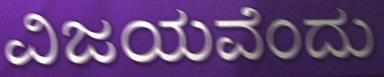
ವಿಜಯವೆಂದು